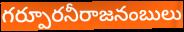
గర్పూరనీరాజనంబులు